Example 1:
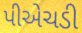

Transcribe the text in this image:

પીએચડી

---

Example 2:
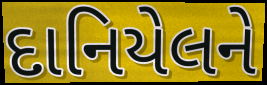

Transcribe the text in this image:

દાનિયેલને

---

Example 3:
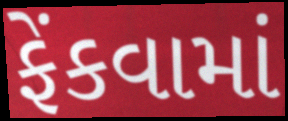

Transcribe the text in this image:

ફેંકવામાં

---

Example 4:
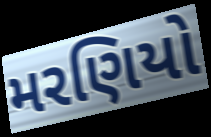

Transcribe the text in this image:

મરણિયો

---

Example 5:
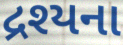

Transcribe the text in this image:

દ્રશ્યના